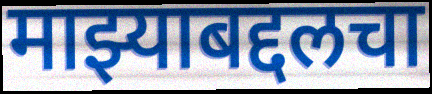
माझ्याबद्दलचा